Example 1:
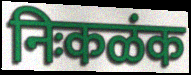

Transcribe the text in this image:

निःकळंक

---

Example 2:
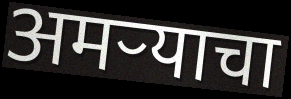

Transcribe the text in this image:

अमऱ्याचा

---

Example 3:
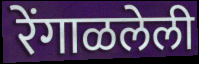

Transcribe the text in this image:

रेंगाळलेली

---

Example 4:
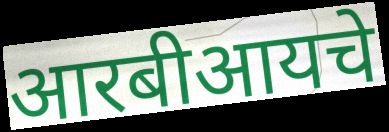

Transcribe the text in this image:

आरबीआयचे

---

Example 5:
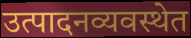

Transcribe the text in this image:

उत्पादनव्यवस्थेत